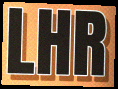
LHR